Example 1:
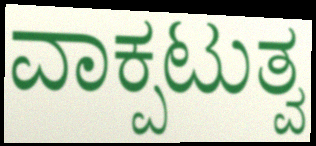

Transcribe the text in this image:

ವಾಕ್ಪಟುತ್ವ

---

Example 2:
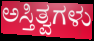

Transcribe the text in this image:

ಅಸ್ತಿತ್ವಗಳು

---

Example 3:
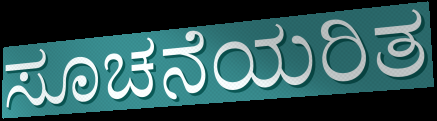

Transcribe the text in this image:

ಸೂಚನೆಯರಿತ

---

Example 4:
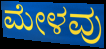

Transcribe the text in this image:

ಮೇಳವು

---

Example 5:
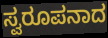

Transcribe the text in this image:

ಸ್ವರೂಪನಾದ